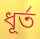
ধূর্ত